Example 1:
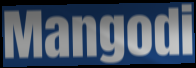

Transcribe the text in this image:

Mangodi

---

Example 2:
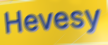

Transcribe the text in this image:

Hevesy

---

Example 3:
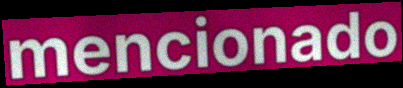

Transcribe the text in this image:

mencionado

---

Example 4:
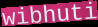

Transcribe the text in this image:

wibhuti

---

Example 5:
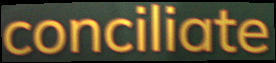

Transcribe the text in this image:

conciliate